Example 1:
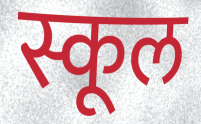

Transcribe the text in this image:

स्कूल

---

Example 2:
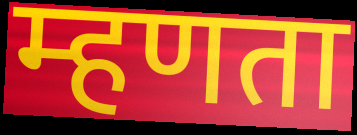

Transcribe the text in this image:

म्हणता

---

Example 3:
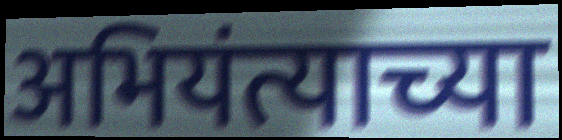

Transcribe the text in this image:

अभियंत्याच्या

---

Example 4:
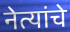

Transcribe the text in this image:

नेत्यांचे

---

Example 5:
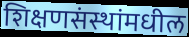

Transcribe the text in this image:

शिक्षणसंस्थांमधील